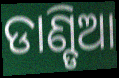
ଡାଣ୍ଡିଆ